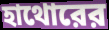
হাথোরের